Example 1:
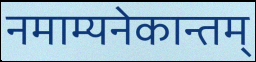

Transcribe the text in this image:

नमाम्यनेकान्तम्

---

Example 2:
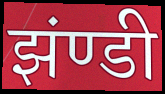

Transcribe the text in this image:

झंण्डी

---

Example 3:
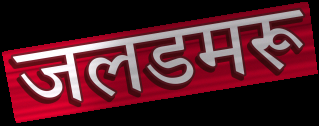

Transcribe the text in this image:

जलडमरू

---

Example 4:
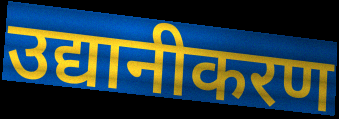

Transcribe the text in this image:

उद्यानीकरण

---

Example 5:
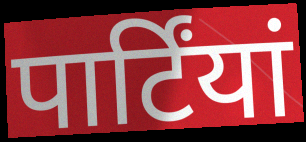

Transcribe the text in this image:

पार्टिंयां